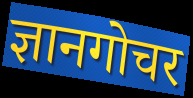
ज्ञानगोचर